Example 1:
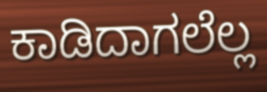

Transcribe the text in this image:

ಕಾಡಿದಾಗಲೆಲ್ಲ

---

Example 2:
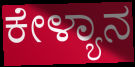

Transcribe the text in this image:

ಕೇಳ್ಯಾನ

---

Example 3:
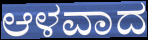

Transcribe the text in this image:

ಆಳವಾದ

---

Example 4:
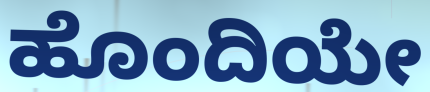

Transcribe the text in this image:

ಹೊಂದಿಯೇ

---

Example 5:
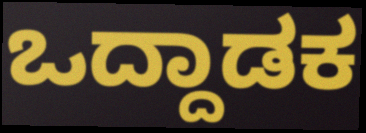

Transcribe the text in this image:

ಒದ್ದಾಡಕ